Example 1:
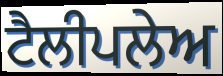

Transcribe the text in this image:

ਟੈਲੀਪਲੇਅ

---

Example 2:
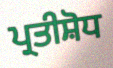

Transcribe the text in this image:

ਪ੍ਰਤੀਸ਼ੋਧ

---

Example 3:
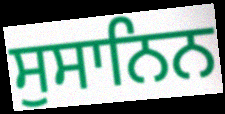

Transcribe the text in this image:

ਸੁਸਾਨਿਨ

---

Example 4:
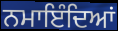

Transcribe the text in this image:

ਨਮਾਇੰਦਿਆਂ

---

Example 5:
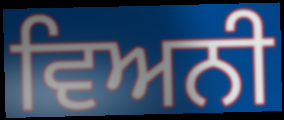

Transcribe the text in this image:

ਵਿਅਨੀ